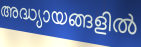
അദ്ധ്യായങ്ങളിൽ